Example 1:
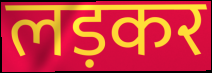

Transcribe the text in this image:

लड़कर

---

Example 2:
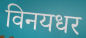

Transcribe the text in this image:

विनयधर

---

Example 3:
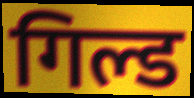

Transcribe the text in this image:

गिल्ड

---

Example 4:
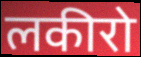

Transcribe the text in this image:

लकीरो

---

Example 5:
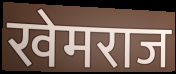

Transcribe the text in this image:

खेमराज